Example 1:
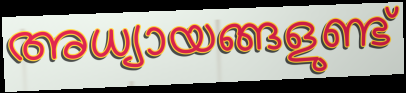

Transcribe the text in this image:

അധ്യായങ്ങളുണ്ട്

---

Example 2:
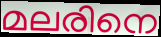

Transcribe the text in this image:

മലരിനെ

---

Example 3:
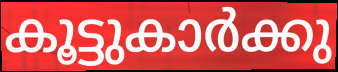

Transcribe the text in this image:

കൂട്ടുകാർക്കു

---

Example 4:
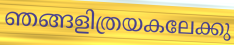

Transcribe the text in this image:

ഞങ്ങളിത്രയകലേക്കു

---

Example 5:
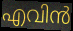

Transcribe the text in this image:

എവിൻ